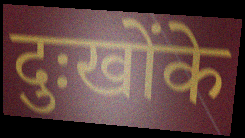
दुःखोंके